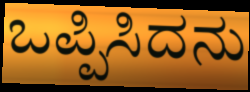
ಒಪ್ಪಿಸಿದನು